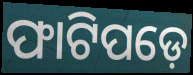
ଫାଟିପଡ଼େ